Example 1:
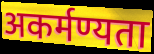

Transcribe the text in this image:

अकर्मण्यता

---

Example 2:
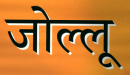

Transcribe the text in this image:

जोल्लू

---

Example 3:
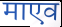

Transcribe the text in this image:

माएव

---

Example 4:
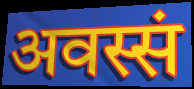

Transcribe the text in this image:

अवस्सं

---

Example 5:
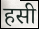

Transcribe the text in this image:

हसी